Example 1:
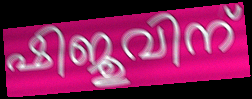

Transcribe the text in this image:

ഷിജുവിന്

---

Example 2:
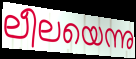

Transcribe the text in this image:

ലീലയെന്നു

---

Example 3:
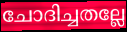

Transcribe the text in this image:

ചോദിച്ചതല്ലേ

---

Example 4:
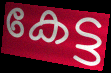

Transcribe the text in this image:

കേട്ട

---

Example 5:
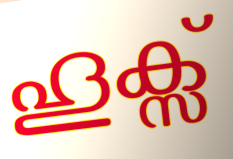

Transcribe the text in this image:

ഹൂക്സ്